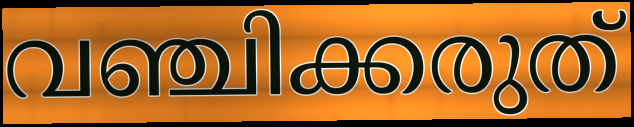
വഞ്ചിക്കരുത്